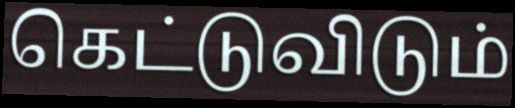
கெட்டுவிடும்